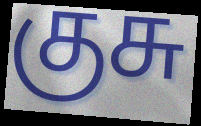
குசு